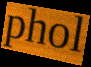
phol